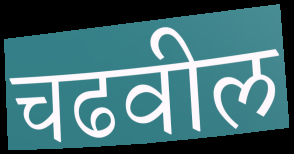
चढवील